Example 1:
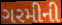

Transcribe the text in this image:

ગરમીની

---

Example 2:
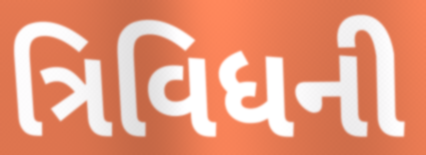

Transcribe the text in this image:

ત્રિવિધની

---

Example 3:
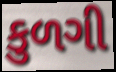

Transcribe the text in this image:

કુળગી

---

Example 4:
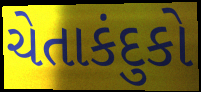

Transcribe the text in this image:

ચેતાકંદુકો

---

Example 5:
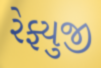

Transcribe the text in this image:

રેફ્યુજી